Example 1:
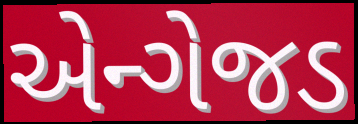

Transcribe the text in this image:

એન્ગેજડ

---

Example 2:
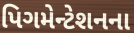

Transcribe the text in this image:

પિગમેન્ટેશનના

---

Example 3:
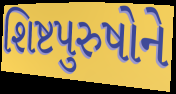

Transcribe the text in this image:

શિષ્ટપુરુષોને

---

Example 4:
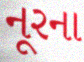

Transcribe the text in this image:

નૂરના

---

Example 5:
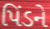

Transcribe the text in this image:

પિંડને